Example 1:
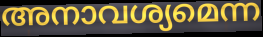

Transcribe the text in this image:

അനാവശ്യമെന്ന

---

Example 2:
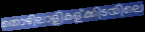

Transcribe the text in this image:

തൊഴിലാളികള്ക്കിടയിലെ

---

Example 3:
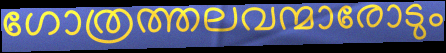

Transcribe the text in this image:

ഗോത്രത്തലവന്മാരോടും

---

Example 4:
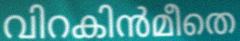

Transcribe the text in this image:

വിറകിൻമീതെ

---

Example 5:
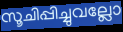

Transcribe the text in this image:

സൂചിപ്പിച്ചുവല്ലോ